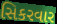
સિકરવાર